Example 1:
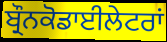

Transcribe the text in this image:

ਬ੍ਰੌਨਕੋਡਾਈਲੇਟਰਾਂ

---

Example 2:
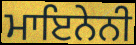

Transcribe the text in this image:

ਮਾਇਨੇਨੀ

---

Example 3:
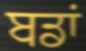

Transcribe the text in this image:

ਬਡਾਂ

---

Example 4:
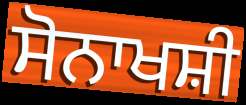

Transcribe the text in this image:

ਸੋਨਾਖਸ਼ੀ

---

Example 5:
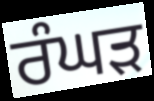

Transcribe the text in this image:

ਰੰਘੜ